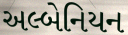
અલ્બેનિયન